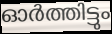
ഓർത്തിട്ടും